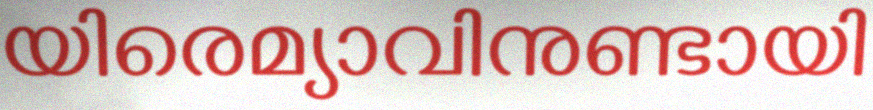
യിരെമ്യാവിനുണ്ടായി